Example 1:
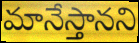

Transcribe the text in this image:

మానేస్తానని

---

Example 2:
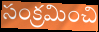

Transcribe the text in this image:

సంక్రమించి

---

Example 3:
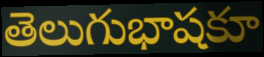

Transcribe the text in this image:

తెలుగుభాషకూ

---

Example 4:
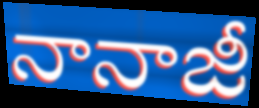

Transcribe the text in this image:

నానాజీ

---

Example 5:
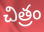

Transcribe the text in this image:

చిత్రం